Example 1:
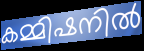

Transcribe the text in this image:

കമ്മിഷനിൽ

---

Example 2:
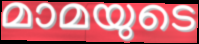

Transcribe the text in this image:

മാമയുടെ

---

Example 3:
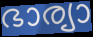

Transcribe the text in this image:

ഭാര്യാ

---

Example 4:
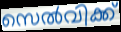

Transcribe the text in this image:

സെൽവിക്ക്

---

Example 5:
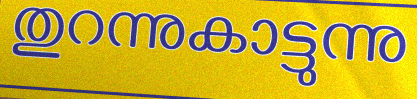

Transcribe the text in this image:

തുറന്നുകാട്ടുന്നു